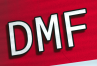
DMF